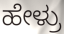
ಹೇಳ್ರು